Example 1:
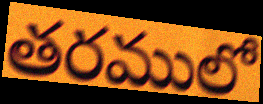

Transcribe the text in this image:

తరములో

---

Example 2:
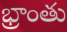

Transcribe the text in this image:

భ్రాంతు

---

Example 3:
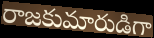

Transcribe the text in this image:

రాజకుమారుడిగా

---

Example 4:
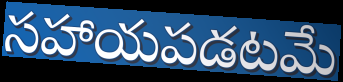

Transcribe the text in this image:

సహాయపడటమే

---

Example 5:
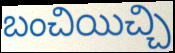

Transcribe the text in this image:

బంచియిచ్చి